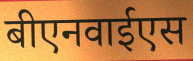
बीएनवाईएस